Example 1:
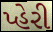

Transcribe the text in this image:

પ્હેરી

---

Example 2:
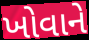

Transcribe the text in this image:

ખોવાને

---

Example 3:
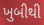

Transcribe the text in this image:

ખુબીથી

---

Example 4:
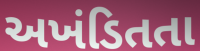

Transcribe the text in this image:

અખંડિતતા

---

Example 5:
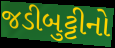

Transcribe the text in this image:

જડીબુટ્ટીનો